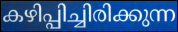
കഴിപ്പിച്ചിരിക്കുന്ന